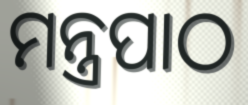
ମନ୍ତ୍ରପାଠ